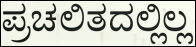
ಪ್ರಚಲಿತದಲ್ಲಿಲ್ಲ